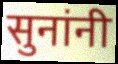
सुनांनी